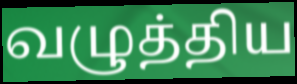
வழுத்திய